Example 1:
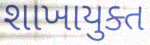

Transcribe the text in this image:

શાખાયુક્ત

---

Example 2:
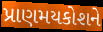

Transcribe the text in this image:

પ્રાણમયકોશને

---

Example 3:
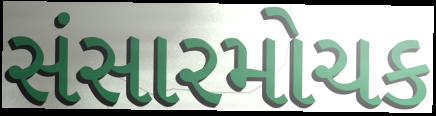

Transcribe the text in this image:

સંસારમોચક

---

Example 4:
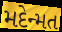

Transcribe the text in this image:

મદેન્મત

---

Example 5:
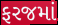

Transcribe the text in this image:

ફરજમાં